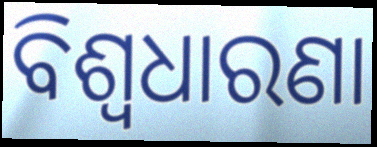
ବିଶ୍ୱଧାରଣା